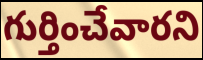
గుర్తించేవారని